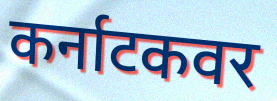
कर्नाटकवर